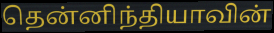
தென்னிந்தியாவின்